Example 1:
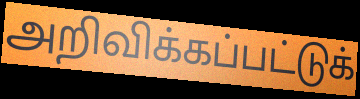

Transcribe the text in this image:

அறிவிக்கப்பட்டுக்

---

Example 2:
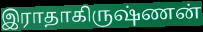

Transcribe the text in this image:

இராதாகிருஷ்ணன்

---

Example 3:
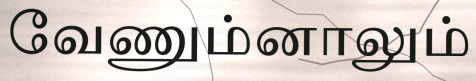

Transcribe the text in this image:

வேணும்னாலும்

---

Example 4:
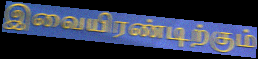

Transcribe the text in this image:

இவையிரண்டிற்கும்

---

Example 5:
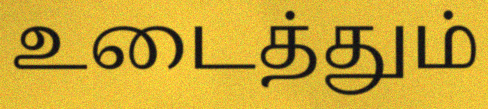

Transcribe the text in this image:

உடைத்தும்